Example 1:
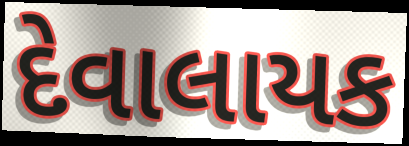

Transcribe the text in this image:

દેવાલાયક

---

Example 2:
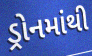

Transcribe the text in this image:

ડ્રોનમાંથી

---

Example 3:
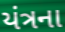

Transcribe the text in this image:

યંત્રના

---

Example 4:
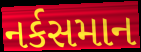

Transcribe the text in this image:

નર્કસમાન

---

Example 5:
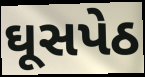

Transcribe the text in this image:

ઘૂસપેઠ